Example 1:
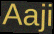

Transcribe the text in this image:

Aaji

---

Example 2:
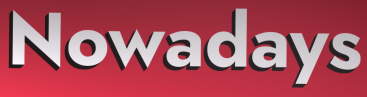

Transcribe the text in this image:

Nowadays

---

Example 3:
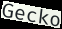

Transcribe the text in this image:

Gecko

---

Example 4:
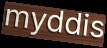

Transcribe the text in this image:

myddis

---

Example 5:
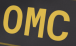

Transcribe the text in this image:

OMC